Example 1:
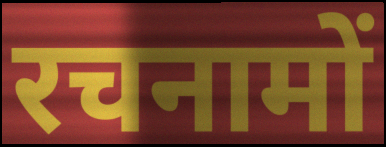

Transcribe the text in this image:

रचनामों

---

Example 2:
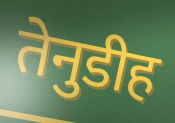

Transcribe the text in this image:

तेनुडीह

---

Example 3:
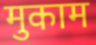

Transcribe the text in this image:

मुकाम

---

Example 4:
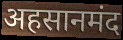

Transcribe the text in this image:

अहसानमंद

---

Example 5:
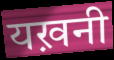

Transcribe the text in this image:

यख़नी